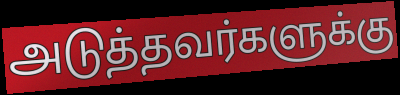
அடுத்தவர்களுக்கு